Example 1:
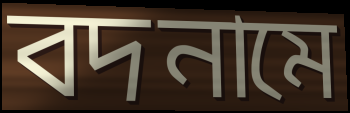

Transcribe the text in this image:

বদনামে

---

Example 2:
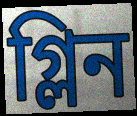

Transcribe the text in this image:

গ্লিন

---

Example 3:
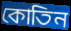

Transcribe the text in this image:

কোতিন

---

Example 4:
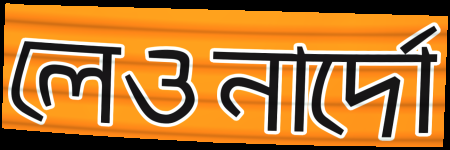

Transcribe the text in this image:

লেওনার্দো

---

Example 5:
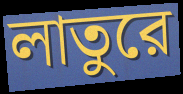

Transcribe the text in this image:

লাতুরে